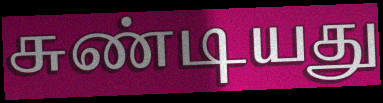
சுண்டியது